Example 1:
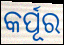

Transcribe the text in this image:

କର୍ପୂର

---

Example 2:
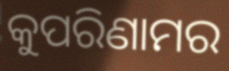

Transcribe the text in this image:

କୁପରିଣାମର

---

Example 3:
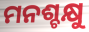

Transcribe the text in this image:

ମନଶ୍ଚକ୍ଷୁ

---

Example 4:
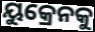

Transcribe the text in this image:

ୟୁକ୍ରେନକୁ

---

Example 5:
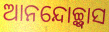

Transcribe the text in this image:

ଆନନ୍ଦୋଚ୍ଛ୍ୱାସ